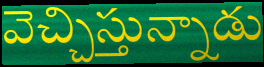
వెచ్చిస్తున్నాడు